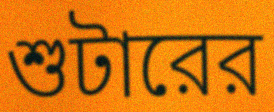
শুটারের